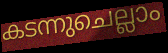
കടന്നുചെല്ലാം